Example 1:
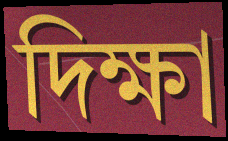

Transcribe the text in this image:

দিক্ষা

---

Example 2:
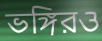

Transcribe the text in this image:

ভঙ্গিরও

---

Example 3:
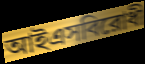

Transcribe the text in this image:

আইএসবিরোধী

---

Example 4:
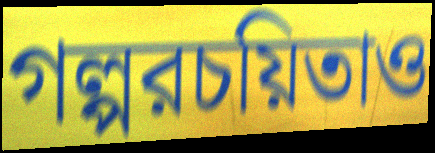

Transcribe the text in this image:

গল্পরচয়িতাও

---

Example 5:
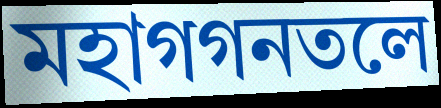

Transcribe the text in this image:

মহাগগনতলে